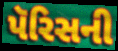
પૅરિસની